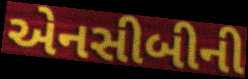
એનસીબીની